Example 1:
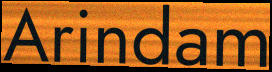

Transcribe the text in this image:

Arindam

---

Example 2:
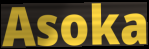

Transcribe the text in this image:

Asoka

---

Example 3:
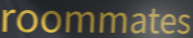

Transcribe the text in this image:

roommates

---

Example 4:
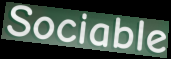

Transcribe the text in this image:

Sociable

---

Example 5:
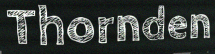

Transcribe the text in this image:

Thornden